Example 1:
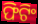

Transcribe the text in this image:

ଫିଟିଂ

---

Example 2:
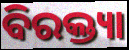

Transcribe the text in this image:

ବିରକ୍ତ୍ୟା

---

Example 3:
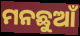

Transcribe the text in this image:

ମନଛୁଆଁ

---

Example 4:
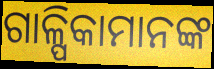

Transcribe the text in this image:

ଗାଳ୍ପିକାମାନଙ୍କ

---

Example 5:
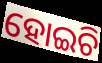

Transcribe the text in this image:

ହୋଇଚି